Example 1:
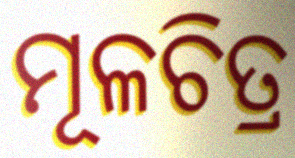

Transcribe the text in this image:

ମୂଳଚିତ୍ର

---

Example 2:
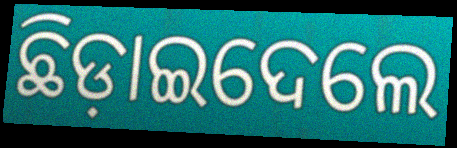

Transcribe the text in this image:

ଛିଡ଼ାଇଦେଲେ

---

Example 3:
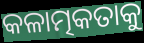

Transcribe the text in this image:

କଳାତ୍ମକତାକୁ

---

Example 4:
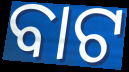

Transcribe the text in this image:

ବାଟ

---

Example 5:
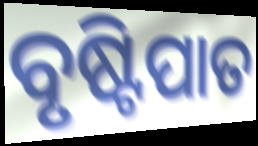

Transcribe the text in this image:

ବୃଷ୍ଟିପାତ